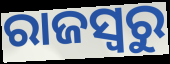
ରାଜସ୍ୱରୁ